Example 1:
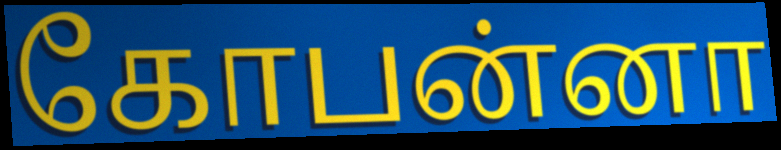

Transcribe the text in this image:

கோபன்னா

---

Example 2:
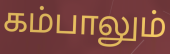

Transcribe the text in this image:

கம்பாலும்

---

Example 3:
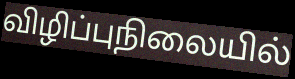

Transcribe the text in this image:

விழிப்புநிலையில்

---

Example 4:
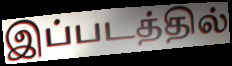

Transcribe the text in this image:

இப்படத்தில்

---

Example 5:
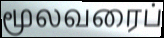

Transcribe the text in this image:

மூலவரைப்